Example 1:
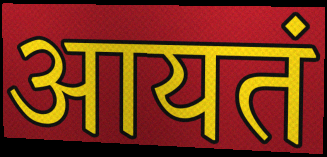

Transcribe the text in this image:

आयतं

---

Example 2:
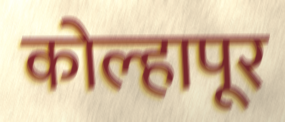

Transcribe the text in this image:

कोल्हापूर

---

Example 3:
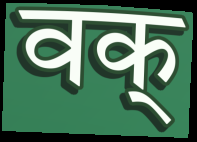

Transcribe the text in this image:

वक्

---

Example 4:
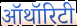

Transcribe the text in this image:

ऑथॉरिटी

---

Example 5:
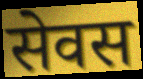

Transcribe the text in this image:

सेवस